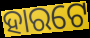
ହାରଟେ